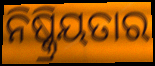
ନିଷ୍କ୍ରିୟତାର